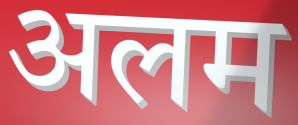
अलम